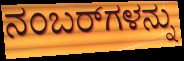
ನಂಬರ್‌ಗಳನ್ನು